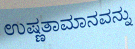
ಉಷ್ಣತಾಮಾನವನ್ನು